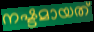
നഷ്ടമായത്